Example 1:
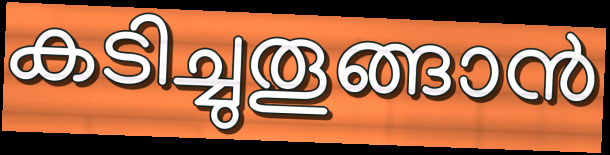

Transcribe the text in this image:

കടിച്ചുതൂങ്ങാൻ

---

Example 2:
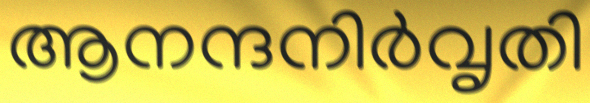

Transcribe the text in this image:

ആനന്ദനിർവൃതി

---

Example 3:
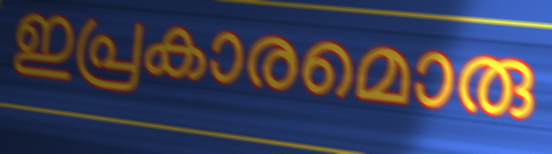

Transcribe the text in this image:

ഇപ്രകാരമൊരു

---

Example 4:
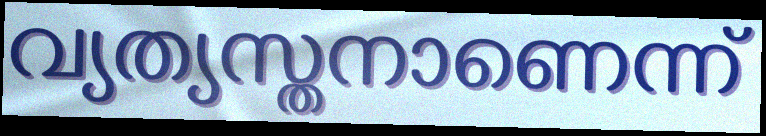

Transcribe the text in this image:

വ്യത്യസ്തനാണെന്ന്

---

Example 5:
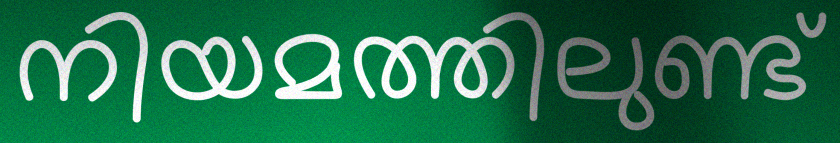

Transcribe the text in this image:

നിയമത്തിലുണ്ട്